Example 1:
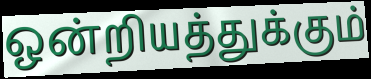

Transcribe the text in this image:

ஒன்றியத்துக்கும்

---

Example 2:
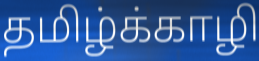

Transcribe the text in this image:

தமிழ்க்காழி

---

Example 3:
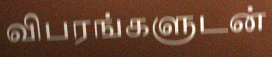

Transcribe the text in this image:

விபரங்களுடன்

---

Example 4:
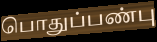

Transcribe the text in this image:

பொதுப்பண்பு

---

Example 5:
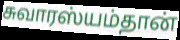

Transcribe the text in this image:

சுவாரஸ்யம்தான்